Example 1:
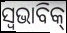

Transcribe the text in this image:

ସ୍ୱଭାବିକ୍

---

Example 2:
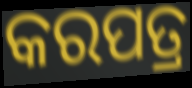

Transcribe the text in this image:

କରପତ୍ର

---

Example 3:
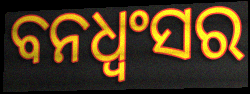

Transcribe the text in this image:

ବନଧ୍ଵଂସର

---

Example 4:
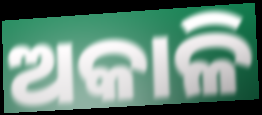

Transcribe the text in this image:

ଅକାଳି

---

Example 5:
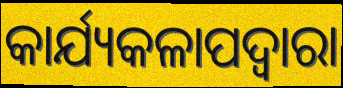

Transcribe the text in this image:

କାର୍ଯ୍ୟକଳାପଦ୍ବାରା